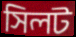
সিলট